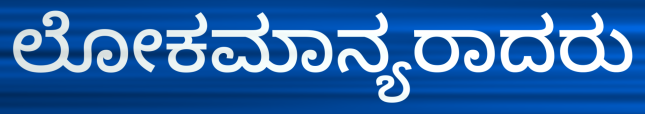
ಲೋಕಮಾನ್ಯರಾದರು